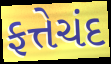
ફત્તેચંદ